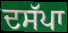
ਦਸੱਪਾ